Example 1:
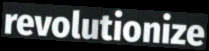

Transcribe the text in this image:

revolutionize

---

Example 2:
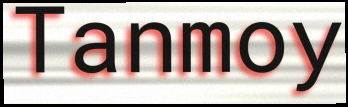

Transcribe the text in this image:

Tanmoy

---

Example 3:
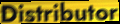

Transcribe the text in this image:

Distributor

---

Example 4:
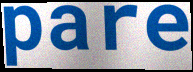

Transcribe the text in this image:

pare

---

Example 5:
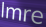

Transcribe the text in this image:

Imre